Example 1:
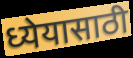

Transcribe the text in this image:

ध्येयासाठी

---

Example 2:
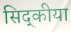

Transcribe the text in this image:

सिद्‌कीया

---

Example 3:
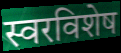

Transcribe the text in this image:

स्वरविशेष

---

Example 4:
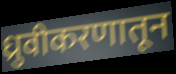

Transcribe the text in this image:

ध्रुवीकरणातून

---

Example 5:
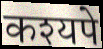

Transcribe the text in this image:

कश्यपे